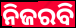
ନିଜରବି